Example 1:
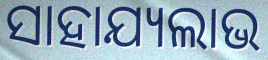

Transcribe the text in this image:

ସାହାଯ୍ୟଲାଭ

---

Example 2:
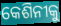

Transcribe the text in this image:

କେଶିନୀକୁ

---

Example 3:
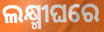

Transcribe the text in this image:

ଲକ୍ଷ୍ମୀଘରେ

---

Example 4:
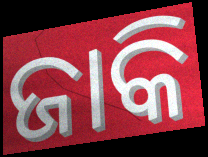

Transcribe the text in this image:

ଜାକି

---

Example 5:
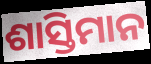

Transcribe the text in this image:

ଶାସ୍ତିମାନ